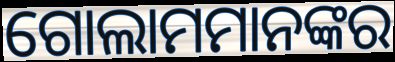
ଗୋଲାମମାନଙ୍କର